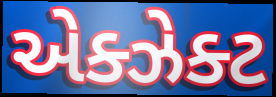
એક્ઝેક્ટ